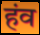
हंव